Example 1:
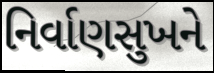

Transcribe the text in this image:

નિર્વાણસુખને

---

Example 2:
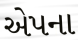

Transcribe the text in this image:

એપના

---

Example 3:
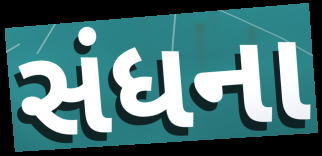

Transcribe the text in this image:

સંધના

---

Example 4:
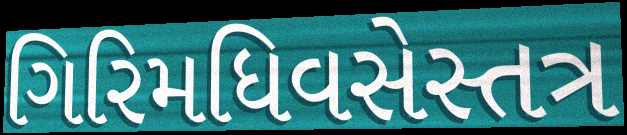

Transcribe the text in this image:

ગિરિમધિવસેસ્તત્ર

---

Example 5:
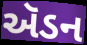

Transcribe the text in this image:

ઍડન